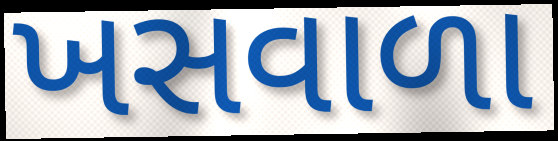
ખસવાળા